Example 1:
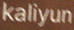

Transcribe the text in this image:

kaliyun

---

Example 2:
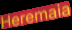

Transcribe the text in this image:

Heremaia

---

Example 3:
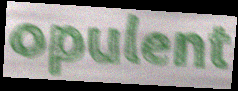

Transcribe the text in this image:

opulent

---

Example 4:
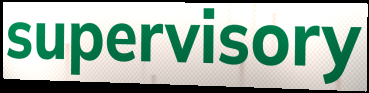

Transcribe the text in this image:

supervisory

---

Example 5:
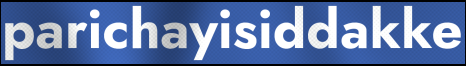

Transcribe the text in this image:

parichayisiddakke